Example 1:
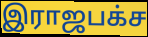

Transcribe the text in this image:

இராஜபக்ச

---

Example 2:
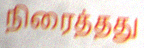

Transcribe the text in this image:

நிரைத்தது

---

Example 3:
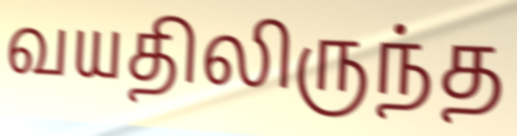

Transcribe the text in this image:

வயதிலிருந்த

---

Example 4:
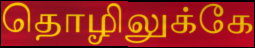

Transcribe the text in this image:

தொழிலுக்கே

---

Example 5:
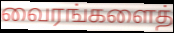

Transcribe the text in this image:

வைரங்களைத்